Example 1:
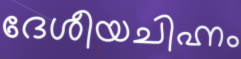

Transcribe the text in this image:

ദേശീയചിഹ്നം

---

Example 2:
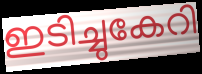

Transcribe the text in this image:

ഇടിച്ചുകേറി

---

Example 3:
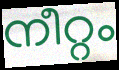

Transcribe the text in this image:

നീറ്റം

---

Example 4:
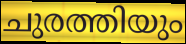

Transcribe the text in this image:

ചുരത്തിയും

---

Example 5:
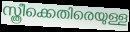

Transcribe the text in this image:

സ്ത്രീക്കെതിരെയുള്ള